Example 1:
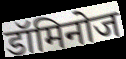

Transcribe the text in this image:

डॉमिनोज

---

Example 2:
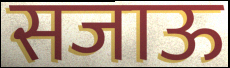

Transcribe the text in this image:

सजाऊ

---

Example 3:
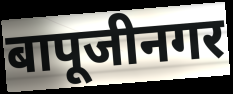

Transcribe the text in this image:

बापूजीनगर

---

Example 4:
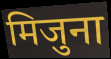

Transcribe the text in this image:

मिजुना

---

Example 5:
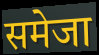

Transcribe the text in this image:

समेजा